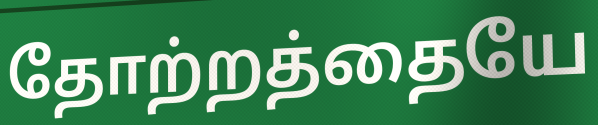
தோற்றத்தையே